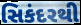
સિકંદરથી